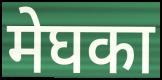
मेघका